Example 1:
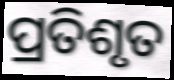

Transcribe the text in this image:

ପ୍ରତିଶୃତ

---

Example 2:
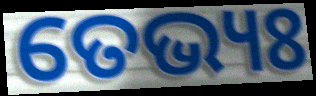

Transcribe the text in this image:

ତେଭ୍ୟଃ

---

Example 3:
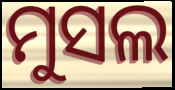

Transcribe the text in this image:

ମୁସଲ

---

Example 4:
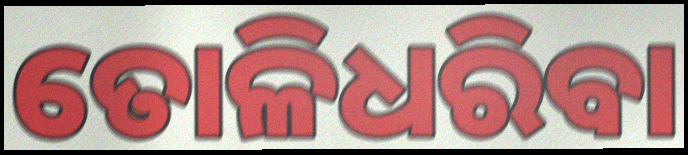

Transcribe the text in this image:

ତୋଳିଧରିବା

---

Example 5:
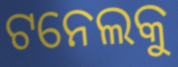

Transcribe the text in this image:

ଟନେଲକୁ